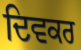
ਦਿਵਕਰ